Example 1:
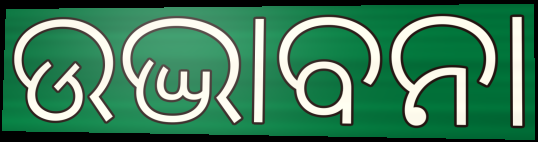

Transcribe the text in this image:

ଉଦ୍ଭାବନା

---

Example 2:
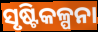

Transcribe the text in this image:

ସୃଷ୍ଟିକଳ୍ପନା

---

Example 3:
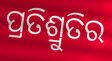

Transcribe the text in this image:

ପ୍ରତିଶ୍ରୁତିର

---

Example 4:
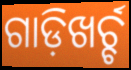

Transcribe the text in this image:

ଗାଡ଼ିଖର୍ଚ୍ଚ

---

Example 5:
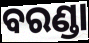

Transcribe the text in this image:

ବରଣ୍ଡା